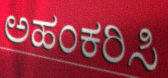
ಅಹಂಕರಿಸಿ